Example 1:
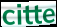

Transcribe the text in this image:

citte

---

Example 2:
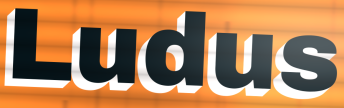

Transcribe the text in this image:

Ludus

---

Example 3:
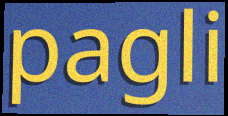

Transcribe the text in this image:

pagli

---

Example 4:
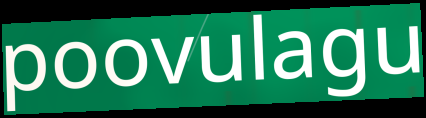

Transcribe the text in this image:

poovulagu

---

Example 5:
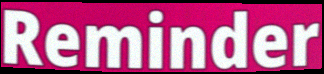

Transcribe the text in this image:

Reminder